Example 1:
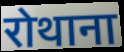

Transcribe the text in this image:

रोथाना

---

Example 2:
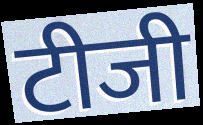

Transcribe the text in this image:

टीजी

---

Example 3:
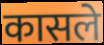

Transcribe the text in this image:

कासले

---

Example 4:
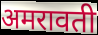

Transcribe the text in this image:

अमरावती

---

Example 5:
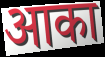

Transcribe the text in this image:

आका